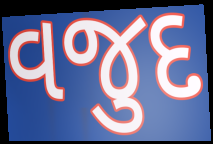
વજુદ